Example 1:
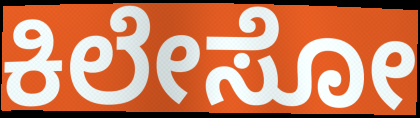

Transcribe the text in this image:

ಕಿಲೇಸೋ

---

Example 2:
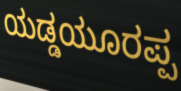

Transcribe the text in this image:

ಯಡ್ಡಯೂರಪ್ಪ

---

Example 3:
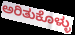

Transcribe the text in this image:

ಅರಿತುಕೊಳ್ಳು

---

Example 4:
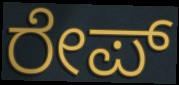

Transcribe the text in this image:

ರೇಪ್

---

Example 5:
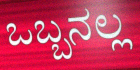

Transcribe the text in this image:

ಒಬ್ಬನಲ್ಲ